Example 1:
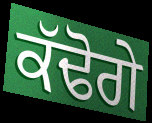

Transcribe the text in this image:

ਕੱਢੋਗੇ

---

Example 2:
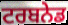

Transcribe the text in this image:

ਟਰਬਨੇਡ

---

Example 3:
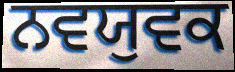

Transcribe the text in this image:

ਨਵਯੁਵਕ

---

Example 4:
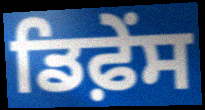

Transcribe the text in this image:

ਡਿਫ਼ੇਂਸ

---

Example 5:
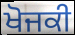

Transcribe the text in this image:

ਖੋਜਕੀ